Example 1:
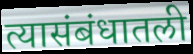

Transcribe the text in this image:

त्यासंबंधातली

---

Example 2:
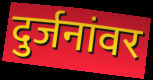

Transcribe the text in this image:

दुर्जनांवर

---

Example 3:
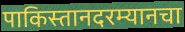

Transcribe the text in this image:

पाकिस्तानदरम्यानचा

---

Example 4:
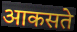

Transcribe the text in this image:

आकसते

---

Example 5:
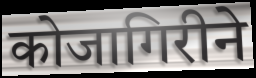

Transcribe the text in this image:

कोजागिरीने